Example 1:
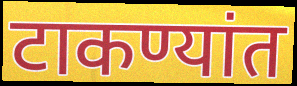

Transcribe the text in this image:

टाकण्यांत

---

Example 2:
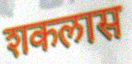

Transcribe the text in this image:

शकलास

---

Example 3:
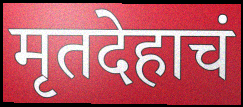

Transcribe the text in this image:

मृतदेहाचं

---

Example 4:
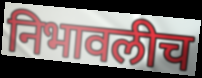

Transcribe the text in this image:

निभावलीच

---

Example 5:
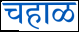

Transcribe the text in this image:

चहाळ